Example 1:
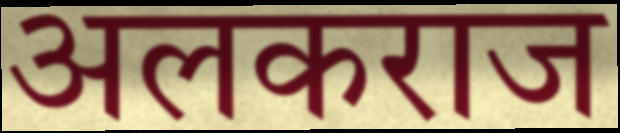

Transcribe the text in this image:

अलकराज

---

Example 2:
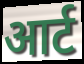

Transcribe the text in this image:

आर्ट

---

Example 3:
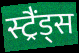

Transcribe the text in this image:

स्ट्रैंड्स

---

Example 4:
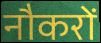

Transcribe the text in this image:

नौकरों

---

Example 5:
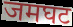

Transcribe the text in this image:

जमघट